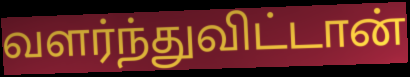
வளர்ந்துவிட்டான்